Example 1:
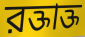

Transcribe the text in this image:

রক্তাক্ত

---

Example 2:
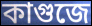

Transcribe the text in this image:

কাগুজে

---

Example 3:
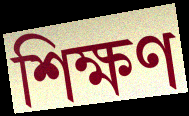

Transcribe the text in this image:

শিক্ষণ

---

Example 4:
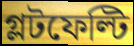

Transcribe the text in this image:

গ্লটফেল্টি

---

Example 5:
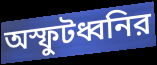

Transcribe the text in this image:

অস্ফুটধ্বনির